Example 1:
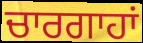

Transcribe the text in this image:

ਚਾਰਗਾਹਾਂ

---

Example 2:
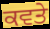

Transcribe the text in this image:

ਕਵਤੇ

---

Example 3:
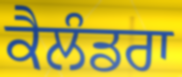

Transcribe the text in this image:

ਕੈਲੰਡਰਾ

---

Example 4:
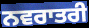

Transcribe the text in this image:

ਨਵਰਾਤਰੀ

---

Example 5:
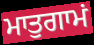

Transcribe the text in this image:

ਮਾਤੁਗਾਮਂ